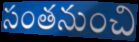
సంతనుంచి